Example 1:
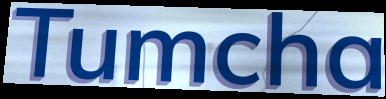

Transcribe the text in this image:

Tumcha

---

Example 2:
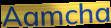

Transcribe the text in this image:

Aamcha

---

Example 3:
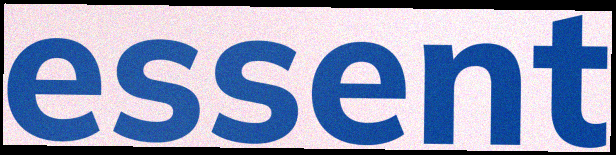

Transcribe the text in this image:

essent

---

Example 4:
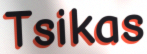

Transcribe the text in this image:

Tsikas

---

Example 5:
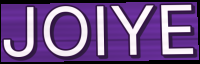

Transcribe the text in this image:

JOIYE